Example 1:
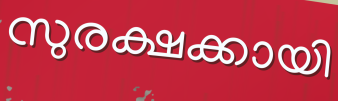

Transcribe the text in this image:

സുരക്ഷക്കായി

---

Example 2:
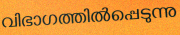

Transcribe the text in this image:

വിഭാഗത്തിൽപ്പെടുന്നു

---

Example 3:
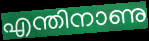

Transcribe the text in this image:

എന്തിനാണു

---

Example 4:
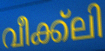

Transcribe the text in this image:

വീക്ക്ലി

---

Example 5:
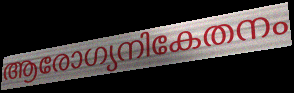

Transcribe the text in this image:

ആരോഗ്യനികേതനം